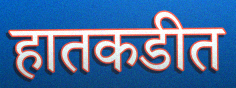
हातकडीत